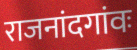
राजनांदगांवः